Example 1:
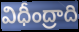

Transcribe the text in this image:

విధీంద్రాది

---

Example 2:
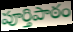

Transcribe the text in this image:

పూర్తిపాఠం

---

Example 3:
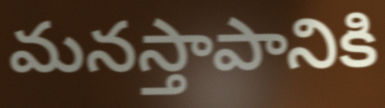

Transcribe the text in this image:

మనస్తాపానికి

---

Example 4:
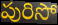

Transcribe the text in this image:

పురిసో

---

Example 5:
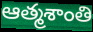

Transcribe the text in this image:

ఆత్మశాంతి